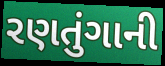
રણતુંગાની